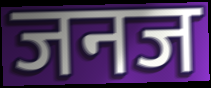
जनज